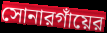
সোনারগাঁয়ের